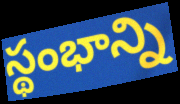
స్థంభాన్ని